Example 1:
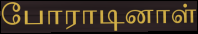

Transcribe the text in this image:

போராடினாள்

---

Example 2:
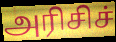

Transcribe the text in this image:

அரிசிச்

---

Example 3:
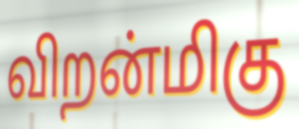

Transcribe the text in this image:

விறன்மிகு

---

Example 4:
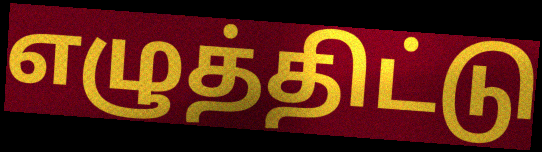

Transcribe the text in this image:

எழுத்திட்டு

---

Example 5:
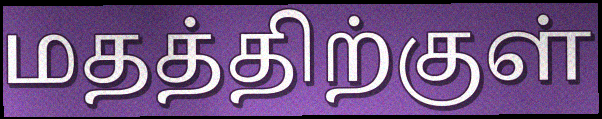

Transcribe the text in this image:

மதத்திற்குள்